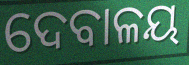
ଦେବାଳୟ